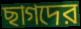
ছাগদের